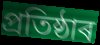
প্ৰতিষ্ঠাৰ